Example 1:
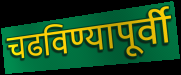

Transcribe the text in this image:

चढविण्यापूर्वी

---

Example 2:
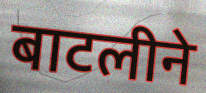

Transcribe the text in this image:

बाटलीने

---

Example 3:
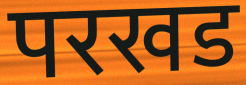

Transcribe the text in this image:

परखड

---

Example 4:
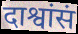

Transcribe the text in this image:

दाश्वांसं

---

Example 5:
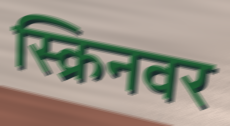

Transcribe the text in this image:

स्क्रिनवर